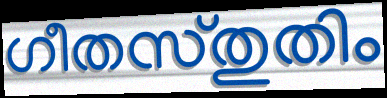
ഗീതസ്തുതിം